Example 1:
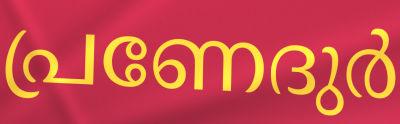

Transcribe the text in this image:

പ്രണേദുർ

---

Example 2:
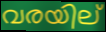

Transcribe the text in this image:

വരയില്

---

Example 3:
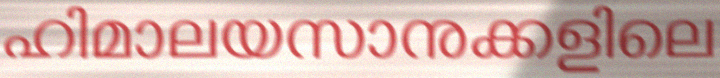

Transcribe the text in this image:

ഹിമാലയസാനുക്കളിലെ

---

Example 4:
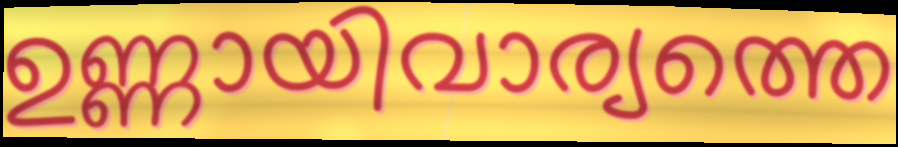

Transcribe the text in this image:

ഉണ്ണായിവാര്യത്തെ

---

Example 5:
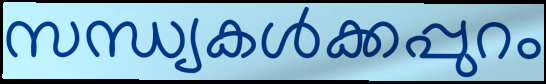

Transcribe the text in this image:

സന്ധ്യകൾക്കപ്പുറം